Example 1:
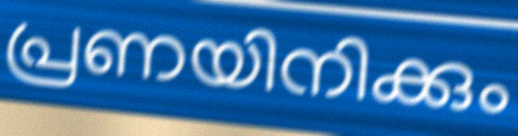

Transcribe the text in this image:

പ്രണയിനിക്കും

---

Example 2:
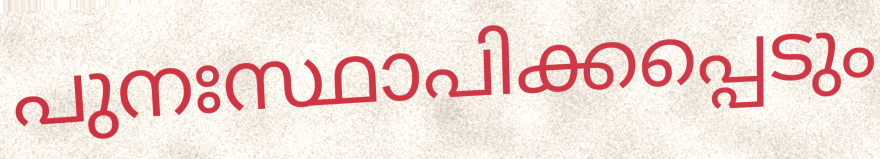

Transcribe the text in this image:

പുനഃസ്ഥാപിക്കപ്പെടും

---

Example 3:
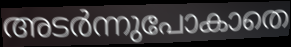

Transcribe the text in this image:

അടർന്നുപോകാതെ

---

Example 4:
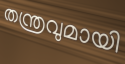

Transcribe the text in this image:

തന്ത്രവുമായി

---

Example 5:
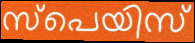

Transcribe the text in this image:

സ്പെയിസ്